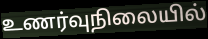
உணர்வுநிலையில்